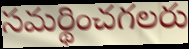
సమర్థించగలరు